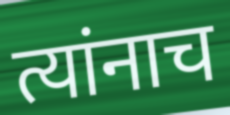
त्यांनाच